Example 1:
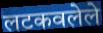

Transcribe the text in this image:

लटकवलेले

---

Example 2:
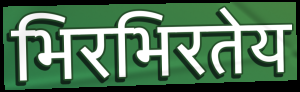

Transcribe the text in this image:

भिरभिरतेय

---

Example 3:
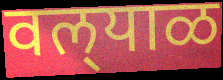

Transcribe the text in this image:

वल्याळ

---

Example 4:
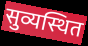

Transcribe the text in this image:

सुव्यस्थित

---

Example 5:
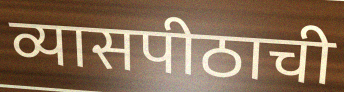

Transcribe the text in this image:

व्यासपीठाची